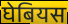
घेबियस